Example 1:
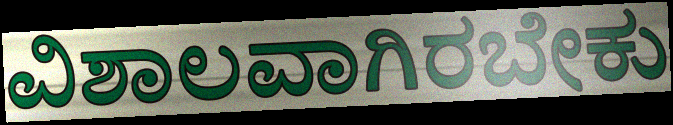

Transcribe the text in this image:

ವಿಶಾಲವಾಗಿರಬೇಕು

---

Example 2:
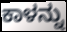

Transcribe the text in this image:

ಕಾಳನ್ನು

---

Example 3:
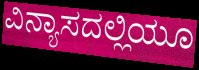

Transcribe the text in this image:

ವಿನ್ಯಾಸದಲ್ಲಿಯೂ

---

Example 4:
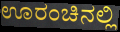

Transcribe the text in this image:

ಊರಂಚಿನಲ್ಲಿ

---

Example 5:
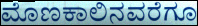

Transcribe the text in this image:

ಮೊಣಕಾಲಿನವರೆಗೂ